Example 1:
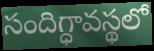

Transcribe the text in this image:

సందిగ్ధావస్థలో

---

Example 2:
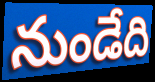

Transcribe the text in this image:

నుండేది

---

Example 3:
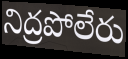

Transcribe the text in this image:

నిద్రపోలేరు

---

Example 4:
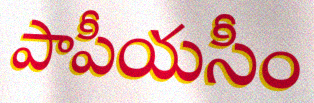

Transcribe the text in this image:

పాపీయసీం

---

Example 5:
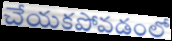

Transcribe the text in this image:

చేయకపోవడంలో